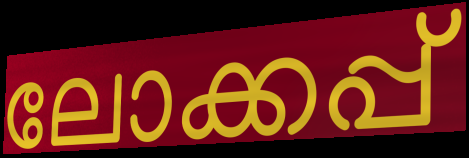
ലോക്കപ്പ്